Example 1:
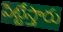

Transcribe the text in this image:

పెట్టేస్తారు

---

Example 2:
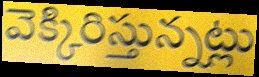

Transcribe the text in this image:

వెక్కిరిస్తున్నట్లు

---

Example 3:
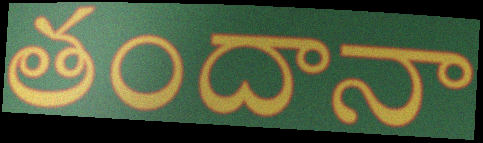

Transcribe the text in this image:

తందానా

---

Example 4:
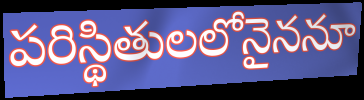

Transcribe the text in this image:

పరిస్థితులలోనైననూ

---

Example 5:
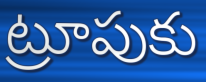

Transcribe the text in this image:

ట్రూపుకు